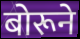
बोरूने